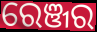
ରେଞ୍ଜର